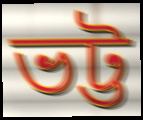
ভট্ট